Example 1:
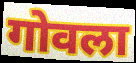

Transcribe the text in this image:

गोवला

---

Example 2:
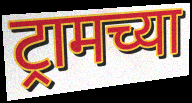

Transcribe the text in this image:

ट्रामच्या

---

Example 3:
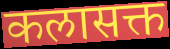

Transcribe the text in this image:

कलासक्त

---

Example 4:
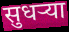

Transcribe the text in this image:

सुधर्‍या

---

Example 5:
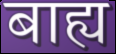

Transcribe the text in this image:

बाह्य